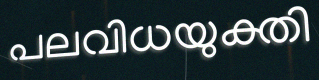
പലവിധയുക്തി